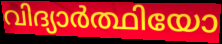
വിദ്യാർത്ഥിയോ